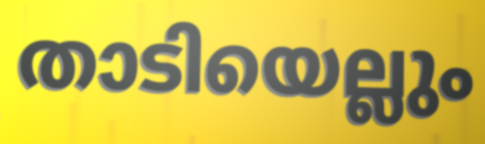
താടിയെല്ലും